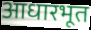
आधारभूत